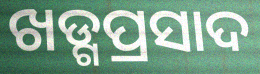
ଖଡ୍ଗପ୍ରସାଦ